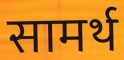
सामर्थ